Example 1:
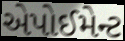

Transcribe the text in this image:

એપોઈમેન્ટ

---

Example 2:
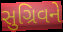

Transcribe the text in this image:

સુગ્રિવને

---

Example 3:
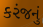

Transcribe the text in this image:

કરંજનું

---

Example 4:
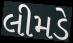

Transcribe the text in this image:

લીમડે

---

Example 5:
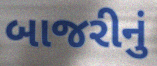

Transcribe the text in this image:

બાજરીનું